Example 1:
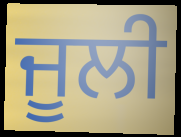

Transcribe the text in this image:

ਜੂਲੀ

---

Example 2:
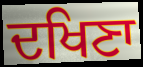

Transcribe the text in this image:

ਦਖਿਣਾ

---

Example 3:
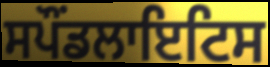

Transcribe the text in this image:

ਸਪੌਂਡਲਾਇਟਿਸ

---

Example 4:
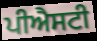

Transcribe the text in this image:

ਪੀਐਸਟੀ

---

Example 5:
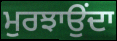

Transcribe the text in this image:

ਮੁਰਝਾਉਂਦਾ